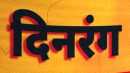
दिनरंग